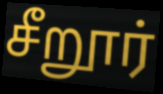
சீறூர்